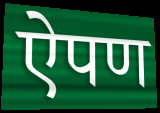
ऐपण